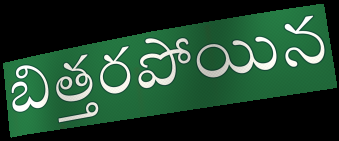
బిత్తరపోయిన